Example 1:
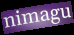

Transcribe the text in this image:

nimagu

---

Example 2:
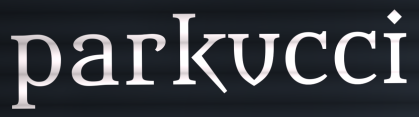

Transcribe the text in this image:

parkucci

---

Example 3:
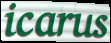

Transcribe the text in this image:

icarus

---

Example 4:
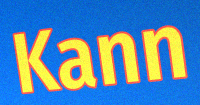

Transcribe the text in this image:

Kann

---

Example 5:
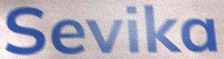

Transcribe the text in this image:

Sevika